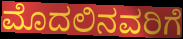
ಮೊದಲಿನವರಿಗೆ